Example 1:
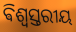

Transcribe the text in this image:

ଵିଶ୍ୱସ୍ତରୀୟ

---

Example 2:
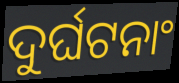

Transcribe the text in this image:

ଦୁର୍ଘଟନାଂ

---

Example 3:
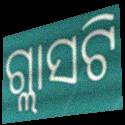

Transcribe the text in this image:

ଗ୍ଲାସଟି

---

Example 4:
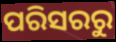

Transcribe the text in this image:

ପରିସରରୁ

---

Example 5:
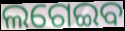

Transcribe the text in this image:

ଲଗେଇବ